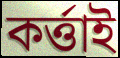
কৰ্ত্তাই